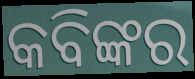
କବିଙ୍କର